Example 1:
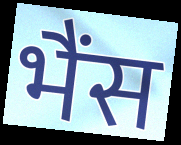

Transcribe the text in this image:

भैंस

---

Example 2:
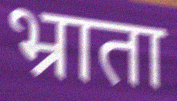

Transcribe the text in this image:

भ्राता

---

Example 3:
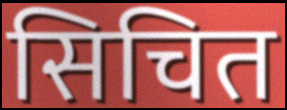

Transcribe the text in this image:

सिचित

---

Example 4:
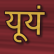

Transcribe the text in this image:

यूयं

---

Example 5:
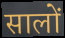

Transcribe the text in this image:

सालों